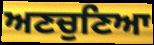
ਅਣਚੁਣਿਆ